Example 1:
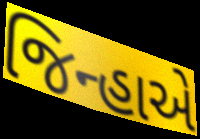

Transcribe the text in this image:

જિન્હાએ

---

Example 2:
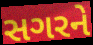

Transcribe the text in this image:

સગરને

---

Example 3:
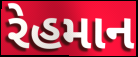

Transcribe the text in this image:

રેહમાન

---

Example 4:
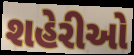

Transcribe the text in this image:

શહેરીઓ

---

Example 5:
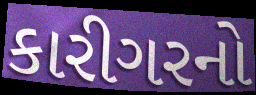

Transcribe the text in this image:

કારીગરનો